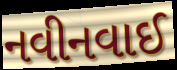
નવીનવાઈ